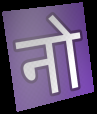
नो